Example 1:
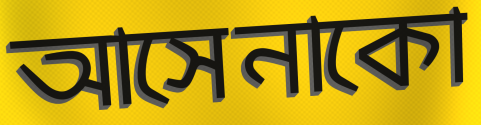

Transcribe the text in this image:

আসেনাকো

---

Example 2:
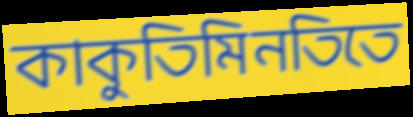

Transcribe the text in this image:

কাকুতিমিনতিতে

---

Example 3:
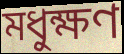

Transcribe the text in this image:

মধুক্ষণ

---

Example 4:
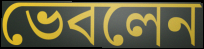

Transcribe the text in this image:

ভেবলেন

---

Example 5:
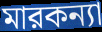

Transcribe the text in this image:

মারকন্যা